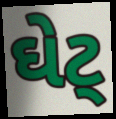
ઘેટ્